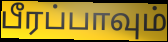
பீரப்பாவும்